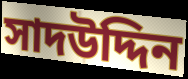
সাদউদ্দিন